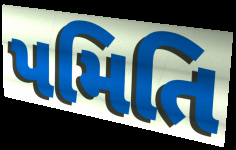
પમિતિ